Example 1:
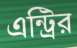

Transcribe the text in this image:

এন্ট্রির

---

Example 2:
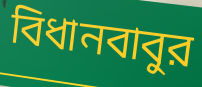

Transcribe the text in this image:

বিধানবাবুর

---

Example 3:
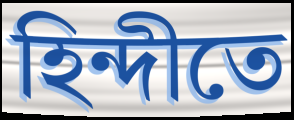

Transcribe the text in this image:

হিন্দীতে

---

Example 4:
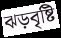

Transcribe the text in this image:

ঝড়বৃষ্টি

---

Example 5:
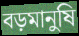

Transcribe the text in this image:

বড়মানুষি